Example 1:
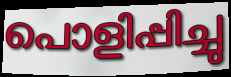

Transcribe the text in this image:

പൊളിപ്പിച്ചു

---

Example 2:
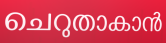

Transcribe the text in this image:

ചെറുതാകാൻ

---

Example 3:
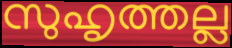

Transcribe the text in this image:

സുഹൃത്തല്ല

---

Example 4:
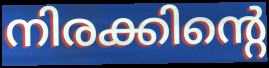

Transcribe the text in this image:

നിരക്കിന്റെ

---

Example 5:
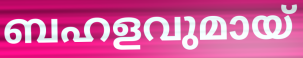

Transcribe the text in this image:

ബഹളവുമായ്